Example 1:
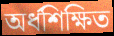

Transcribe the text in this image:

অর্ধশিক্ষিত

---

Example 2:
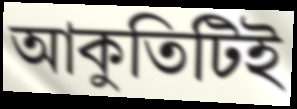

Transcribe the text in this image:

আকুতিটিই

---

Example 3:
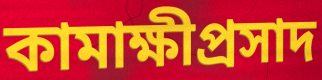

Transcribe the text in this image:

কামাক্ষীপ্রসাদ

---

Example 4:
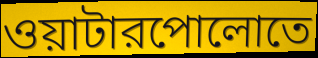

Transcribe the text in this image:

ওয়াটারপোলোতে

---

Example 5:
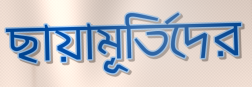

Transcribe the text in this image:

ছায়ামূর্তিদের